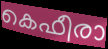
കെഫീരാ